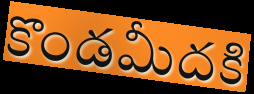
కొండమీదకి